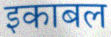
इकाबल